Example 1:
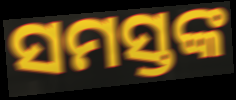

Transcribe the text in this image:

ସମସ୍ତଙ୍କ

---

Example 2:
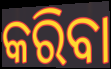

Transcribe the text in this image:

କରିବା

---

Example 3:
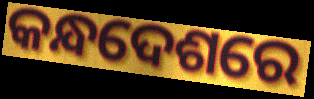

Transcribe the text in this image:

କନ୍ଧଦେଶରେ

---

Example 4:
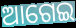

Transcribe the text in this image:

ଆଗେଇ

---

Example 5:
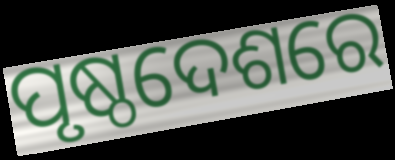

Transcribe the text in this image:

ପୃଷ୍ଠଦେଶରେ